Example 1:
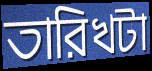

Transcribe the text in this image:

তারিখটা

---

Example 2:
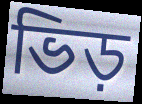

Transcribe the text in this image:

ভিড়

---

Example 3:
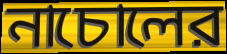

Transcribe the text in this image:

নাচোলের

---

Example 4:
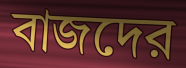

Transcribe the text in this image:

বাজদের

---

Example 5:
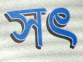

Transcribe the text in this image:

সৎ